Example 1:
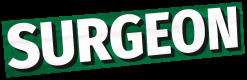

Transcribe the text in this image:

SURGEON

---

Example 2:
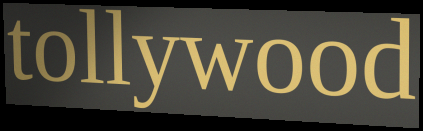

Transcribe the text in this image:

tollywood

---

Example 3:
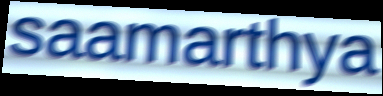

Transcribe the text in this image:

saamarthya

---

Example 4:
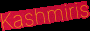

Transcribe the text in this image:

Kashmiris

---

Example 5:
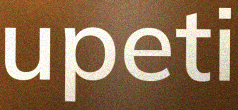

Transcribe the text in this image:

upeti